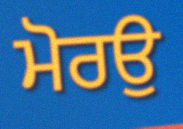
ਮੋਰਉ